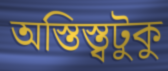
অস্তিস্ত্বটুকু